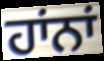
ਹਾਂਨਾਂ